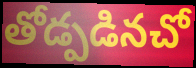
తోడ్పడినచో